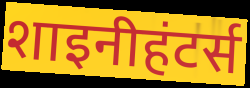
शाइनीहंटर्स